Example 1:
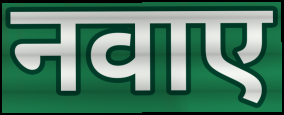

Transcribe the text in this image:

नवाए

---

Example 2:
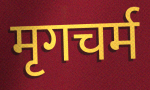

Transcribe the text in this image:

मृगचर्म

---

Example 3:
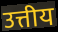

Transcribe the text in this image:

उत्तीय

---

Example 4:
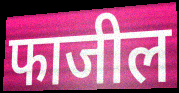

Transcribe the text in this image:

फाजील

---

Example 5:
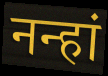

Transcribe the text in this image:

नन्हां